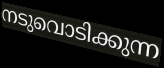
നടുവൊടിക്കുന്ന